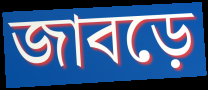
জাবড়ে